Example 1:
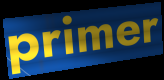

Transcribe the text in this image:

primer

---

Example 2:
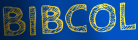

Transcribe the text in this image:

BIBCOL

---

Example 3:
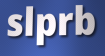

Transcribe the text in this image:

slprb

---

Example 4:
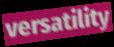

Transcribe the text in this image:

versatility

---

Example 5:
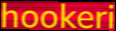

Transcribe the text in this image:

hookeri